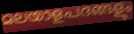
മലയാളപദങ്ങളും